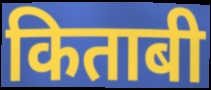
किताबी